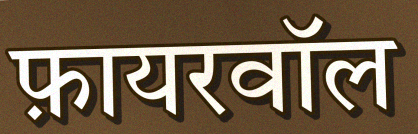
फ़ायरवॉल